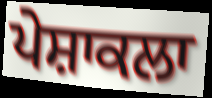
ਪੇਸ਼ਾਕਲਾ